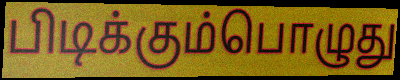
பிடிக்கும்பொழுது